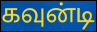
கவுன்டி